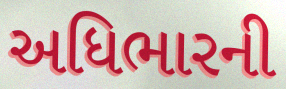
અધિભારની